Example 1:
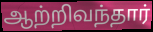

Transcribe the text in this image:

ஆற்றிவந்தார்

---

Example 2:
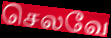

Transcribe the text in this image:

செலவே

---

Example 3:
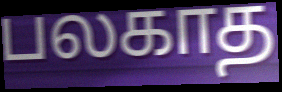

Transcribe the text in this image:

பலகாத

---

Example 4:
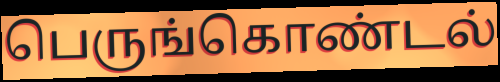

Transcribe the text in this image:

பெருங்கொண்டல்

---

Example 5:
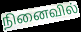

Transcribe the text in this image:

நினைவில்